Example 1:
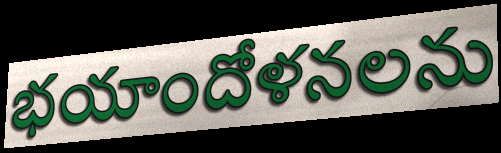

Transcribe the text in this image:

భయాందోళనలను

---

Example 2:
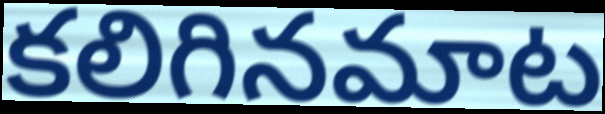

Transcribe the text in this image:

కలిగినమాట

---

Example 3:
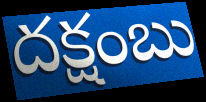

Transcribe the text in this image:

దక్షంబు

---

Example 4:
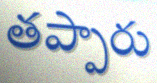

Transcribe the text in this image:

తప్పారు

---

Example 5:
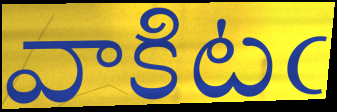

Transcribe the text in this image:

వాకిటఁ